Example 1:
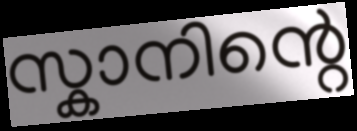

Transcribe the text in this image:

സ്കാനിന്റെ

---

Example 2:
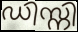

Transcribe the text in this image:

ഡിസ്നി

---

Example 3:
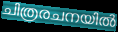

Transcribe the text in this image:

ചിത്രരചനയിൽ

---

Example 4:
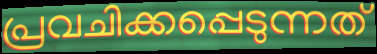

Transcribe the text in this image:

പ്രവചിക്കപ്പെടുന്നത്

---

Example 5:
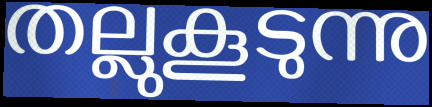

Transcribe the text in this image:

തല്ലുകൂടുന്നു